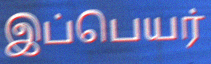
இப்பெயர்